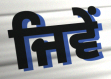
ਜਿਵੇੰ